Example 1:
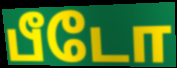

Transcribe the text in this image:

பீடோ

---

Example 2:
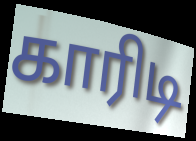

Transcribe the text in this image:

காரிடி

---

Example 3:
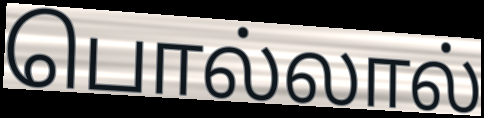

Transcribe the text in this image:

பொல்லால்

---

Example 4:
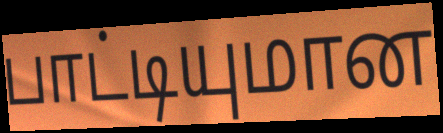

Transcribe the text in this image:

பாட்டியுமான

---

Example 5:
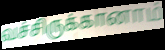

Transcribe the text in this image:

வச்சிருக்கானாம்